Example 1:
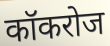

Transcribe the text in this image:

कॉकरोज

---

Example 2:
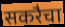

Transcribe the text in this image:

सकरैचा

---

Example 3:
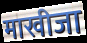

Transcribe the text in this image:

माखीजा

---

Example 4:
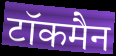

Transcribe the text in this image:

टॉकमैन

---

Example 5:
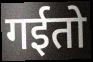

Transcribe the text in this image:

गईतो